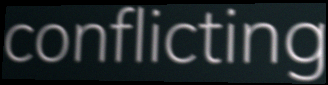
conflicting